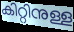
കിറ്റിനുള്ള